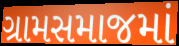
ગ્રામસમાજમાં